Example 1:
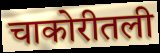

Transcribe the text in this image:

चाकोरीतली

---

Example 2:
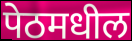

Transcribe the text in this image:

पेठमधील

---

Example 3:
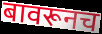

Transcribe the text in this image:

बावरूनच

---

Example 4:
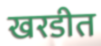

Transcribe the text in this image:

खरडीत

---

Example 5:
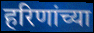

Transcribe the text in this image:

हरिणांच्या